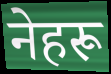
नेहरू